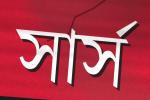
সার্স